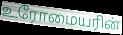
உரோமையரின்